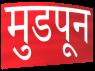
मुडपून